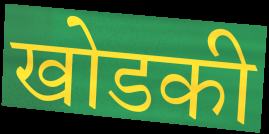
खोडकी